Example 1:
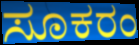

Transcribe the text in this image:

ಸೂಕರಂ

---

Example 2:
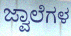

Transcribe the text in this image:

ಜ್ವಾಲೆಗಳ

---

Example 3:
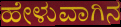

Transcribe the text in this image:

ಹೇಳುವಾಗಿನ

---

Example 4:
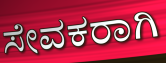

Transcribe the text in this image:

ಸೇವಕರಾಗಿ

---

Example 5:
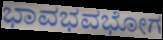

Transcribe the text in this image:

ಭಾವಭವಭೋಗ